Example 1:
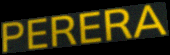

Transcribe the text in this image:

PERERA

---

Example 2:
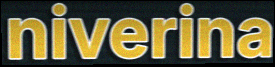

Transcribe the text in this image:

niverina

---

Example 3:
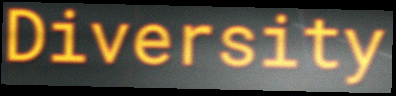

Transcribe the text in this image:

Diversity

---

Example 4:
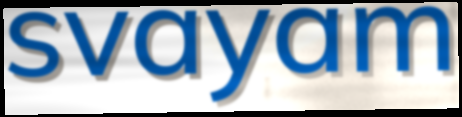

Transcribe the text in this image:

svayam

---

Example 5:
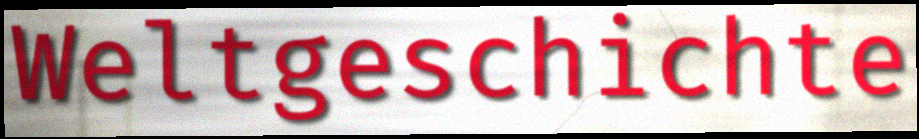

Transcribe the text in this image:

Weltgeschichte